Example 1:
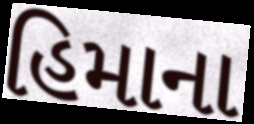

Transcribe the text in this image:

હિમાના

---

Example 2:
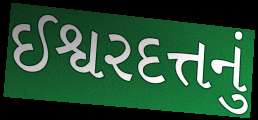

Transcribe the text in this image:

ઈશ્વરદત્તનું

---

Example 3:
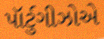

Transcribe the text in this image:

પૉર્ટુગીઝોએ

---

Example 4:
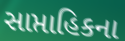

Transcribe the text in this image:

સાપ્તાહિકના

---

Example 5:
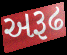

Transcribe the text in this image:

અરૂઢ